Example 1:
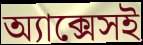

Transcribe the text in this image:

অ্যাক্সেসই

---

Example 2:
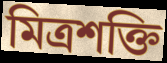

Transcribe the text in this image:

মিত্রশক্তি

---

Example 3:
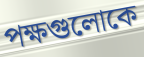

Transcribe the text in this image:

পক্ষগুলোকে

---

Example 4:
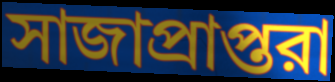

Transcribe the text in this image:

সাজাপ্রাপ্তরা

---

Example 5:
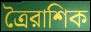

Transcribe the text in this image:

ত্রৈরাশিক